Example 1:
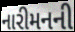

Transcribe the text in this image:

નારીમનની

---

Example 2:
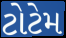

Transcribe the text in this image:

ટોટેમ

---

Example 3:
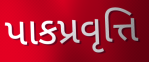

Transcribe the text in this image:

પાકપ્રવૃત્તિ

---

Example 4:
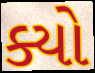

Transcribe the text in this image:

ક્યો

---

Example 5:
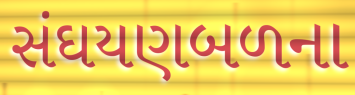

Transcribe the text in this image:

સંઘયણબળના